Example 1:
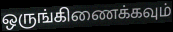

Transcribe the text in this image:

ஒருங்கிணைக்கவும்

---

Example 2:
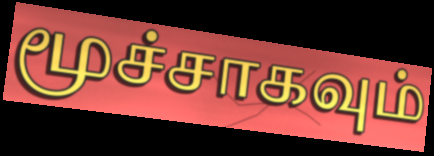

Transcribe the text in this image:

மூச்சாகவும்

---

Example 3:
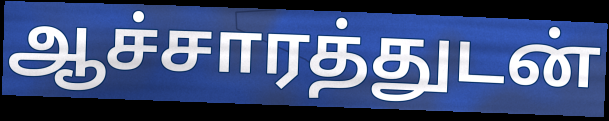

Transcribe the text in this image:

ஆச்சாரத்துடன்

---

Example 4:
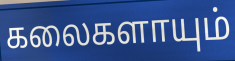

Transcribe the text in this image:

கலைகளாயும்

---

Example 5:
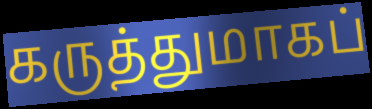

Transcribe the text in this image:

கருத்துமாகப்